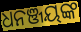
ଧନଞ୍ଜୟଙ୍କ